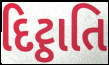
દિટ્ઠાતિ